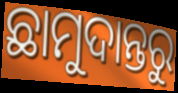
ଛାମୁଦାନ୍ତରୁ